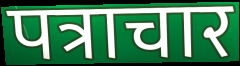
पत्राचार